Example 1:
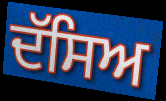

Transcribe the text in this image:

ਦੱਸਿਅ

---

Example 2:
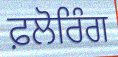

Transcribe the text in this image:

ਫ਼ਲੋਰਿੰਗ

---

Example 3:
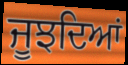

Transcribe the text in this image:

ਜੂਝਦਿਆਂ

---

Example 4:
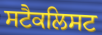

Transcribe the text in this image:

ਸਟੈਕਲਿਸਟ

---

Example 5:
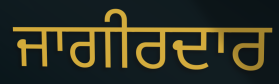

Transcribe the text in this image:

ਜਾਗੀਰਦਾਰ